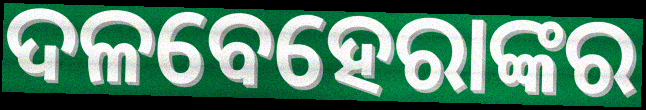
ଦଳବେହେରାଙ୍କର